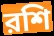
রশি